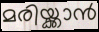
മരിയ്ക്കാൻ